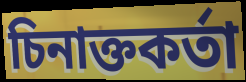
চিনাক্তকৰ্তা